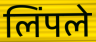
लिंपले